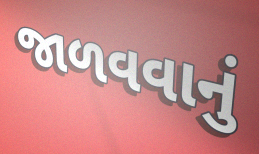
જાળવવાનું